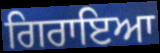
ਗਿਰਾਇਆ